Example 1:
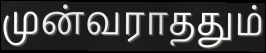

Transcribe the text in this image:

முன்வராததும்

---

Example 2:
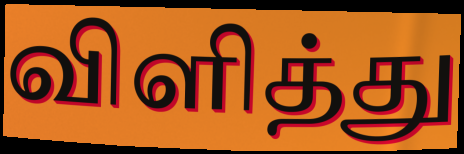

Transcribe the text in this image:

விளித்து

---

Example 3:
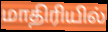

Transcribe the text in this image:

மாதிரியில்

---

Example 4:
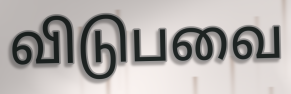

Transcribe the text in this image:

விடுபவை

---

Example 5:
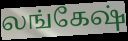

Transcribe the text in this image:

லங்கேஷ்